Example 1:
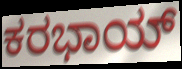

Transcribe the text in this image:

ಕರಭಾಯ್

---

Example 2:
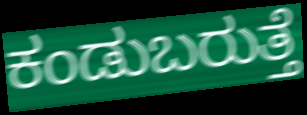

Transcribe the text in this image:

ಕಂಡುಬರುತ್ತೆ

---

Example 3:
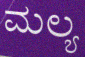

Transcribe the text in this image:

ಮಲ್ಯ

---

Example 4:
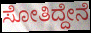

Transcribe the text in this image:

ಸೋತಿದ್ದೇನೆ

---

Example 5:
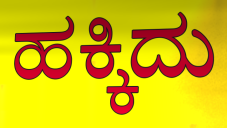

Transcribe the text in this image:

ಹಕ್ಕಿದು